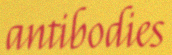
antibodies